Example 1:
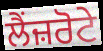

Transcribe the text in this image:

ਲੈਂਜ਼ਰੋਟੇ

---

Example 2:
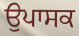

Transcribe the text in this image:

ਉਪਾਸਕ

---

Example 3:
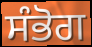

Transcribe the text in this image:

ਸੰਭੋਗ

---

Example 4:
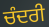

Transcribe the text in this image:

ਚੰਦਰੀ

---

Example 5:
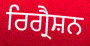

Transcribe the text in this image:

ਰਿਗ੍ਰੈਸ਼ਨ